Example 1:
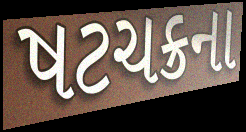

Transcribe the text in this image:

ષટચક્રના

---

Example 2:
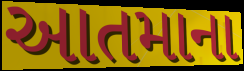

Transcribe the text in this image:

આતમાના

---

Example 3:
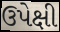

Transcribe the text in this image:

ઉપેક્ષી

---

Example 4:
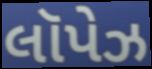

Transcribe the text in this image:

લૉપેઝ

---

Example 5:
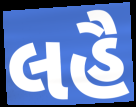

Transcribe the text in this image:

લહૈ